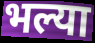
भल्या